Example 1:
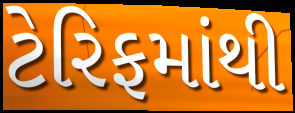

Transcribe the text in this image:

ટેરિફમાંથી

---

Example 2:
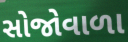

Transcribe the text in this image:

સોજોવાળા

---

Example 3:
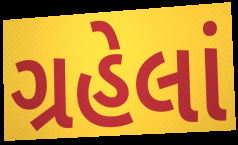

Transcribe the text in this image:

ગ્રહેલાં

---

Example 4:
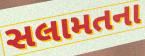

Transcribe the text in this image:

સલામતના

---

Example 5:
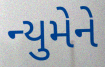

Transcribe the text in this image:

ન્યુમેને